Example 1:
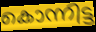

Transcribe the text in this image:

കൊന്നിട്ട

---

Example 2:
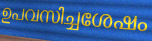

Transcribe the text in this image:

ഉപവസിച്ചശേഷം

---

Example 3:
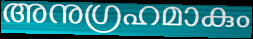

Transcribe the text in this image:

അനുഗ്രഹമാകും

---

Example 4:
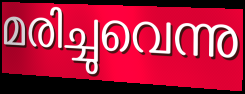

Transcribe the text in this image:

മരിച്ചുവെന്നു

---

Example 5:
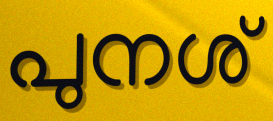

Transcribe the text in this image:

പുനശ്